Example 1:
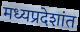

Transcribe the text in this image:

मध्यप्रदेशांत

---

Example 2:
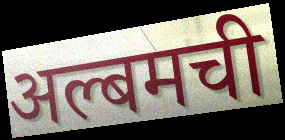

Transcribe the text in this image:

अल्बमची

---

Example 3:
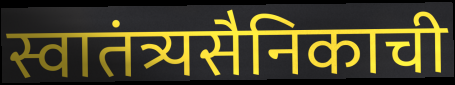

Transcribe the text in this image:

स्वातंत्र्यसैनिकाची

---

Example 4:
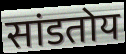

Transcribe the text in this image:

सांडतोय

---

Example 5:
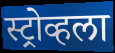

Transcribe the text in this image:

स्ट्रोव्हला